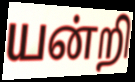
யன்றி